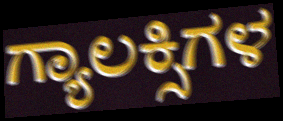
ಗ್ಯಾಲಕ್ಸಿಗಳ